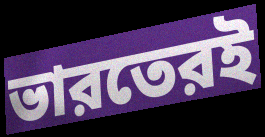
ভারতেরই